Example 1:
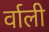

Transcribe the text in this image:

र्वाली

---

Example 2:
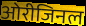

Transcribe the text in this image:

ओरीजिनल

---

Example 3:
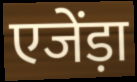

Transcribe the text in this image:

एजेंड़ा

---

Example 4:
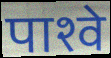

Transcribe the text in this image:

पाश्वे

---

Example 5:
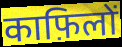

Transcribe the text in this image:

काफ़िलों